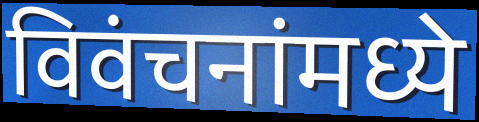
विवंचनांमध्ये